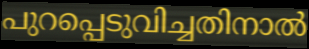
പുറപ്പെടുവിച്ചതിനാൽ